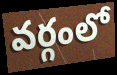
వర్గంలో